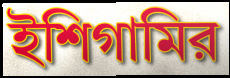
ইশিগামির